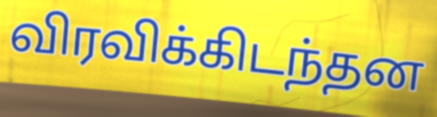
விரவிக்கிடந்தன